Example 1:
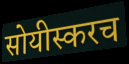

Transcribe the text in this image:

सोयीस्करच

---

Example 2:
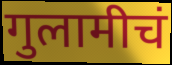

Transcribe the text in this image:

गुलामीचं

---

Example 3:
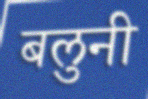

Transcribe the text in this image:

बलुनी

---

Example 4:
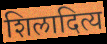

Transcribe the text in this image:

शिलादित्य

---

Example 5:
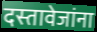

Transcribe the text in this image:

दस्तावेजांना